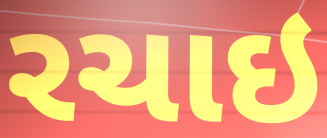
રચાઇ